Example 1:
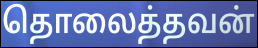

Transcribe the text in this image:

தொலைத்தவன்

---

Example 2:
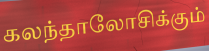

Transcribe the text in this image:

கலந்தாலோசிக்கும்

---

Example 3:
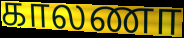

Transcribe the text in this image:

காலணா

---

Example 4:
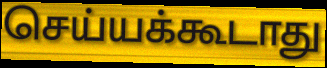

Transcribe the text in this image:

செய்யக்கூடாது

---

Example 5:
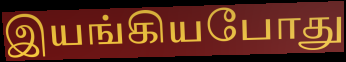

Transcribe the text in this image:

இயங்கியபோது